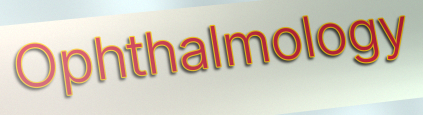
Ophthalmology